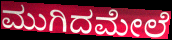
ಮುಗಿದಮೇಲೆ